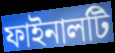
ফাইনালটি